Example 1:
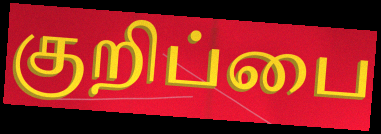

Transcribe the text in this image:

குறிப்பை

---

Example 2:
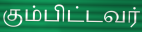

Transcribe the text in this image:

கும்பிட்டவர்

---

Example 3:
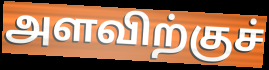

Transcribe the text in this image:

அளவிற்குச்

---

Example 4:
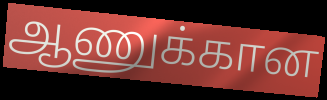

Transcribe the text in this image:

ஆணுக்கான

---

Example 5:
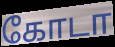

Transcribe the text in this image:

கோடா